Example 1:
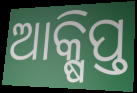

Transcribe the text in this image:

ଆକ୍ଷିପ୍ତ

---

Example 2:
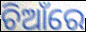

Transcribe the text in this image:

ଚିଆଁରେ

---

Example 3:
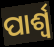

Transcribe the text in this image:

ପାର୍ଶ୍ବ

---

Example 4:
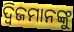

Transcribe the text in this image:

ଦ୍ୱିଜମାନଙ୍କୁ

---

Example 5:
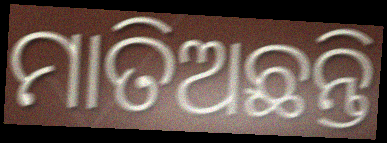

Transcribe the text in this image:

ମାତିଅଛନ୍ତି